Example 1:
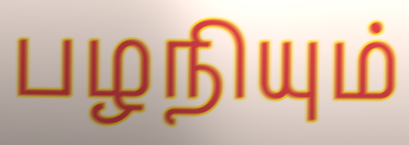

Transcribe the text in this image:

பழநியும்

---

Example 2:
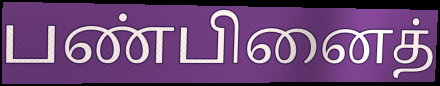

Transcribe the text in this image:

பண்பினைத்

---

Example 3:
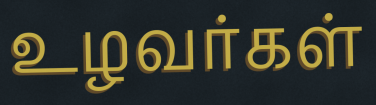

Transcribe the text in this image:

உழவர்கள்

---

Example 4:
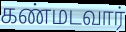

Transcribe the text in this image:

கண்மடவார்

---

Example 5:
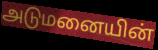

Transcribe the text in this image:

அடுமனையின்